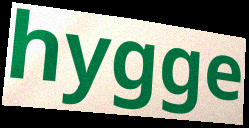
hygge